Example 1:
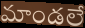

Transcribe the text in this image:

మాండలే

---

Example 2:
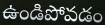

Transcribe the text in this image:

ఉండిపోవడం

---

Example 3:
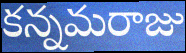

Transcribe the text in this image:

కన్నమరాజు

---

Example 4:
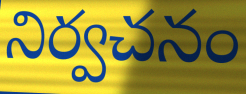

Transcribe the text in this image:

నిర్వచనం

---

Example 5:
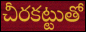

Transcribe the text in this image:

చీరకట్టుతో